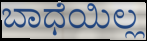
ಬಾಧೆಯಿಲ್ಲ